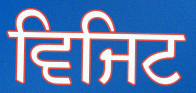
ਵਿਜਿਟ